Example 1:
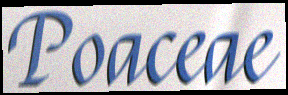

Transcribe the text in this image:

Poaceae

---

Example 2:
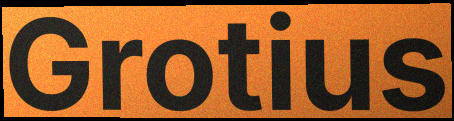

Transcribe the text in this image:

Grotius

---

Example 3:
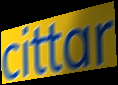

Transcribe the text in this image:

cittar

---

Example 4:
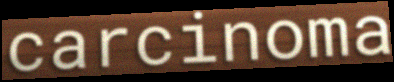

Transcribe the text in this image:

carcinoma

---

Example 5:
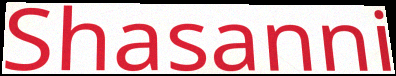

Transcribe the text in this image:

Shasanni